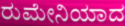
ರುಮೇನಿಯಾದ